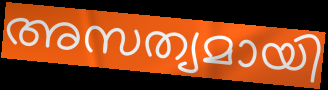
അസത്യമായി